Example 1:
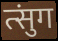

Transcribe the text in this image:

त्सुंग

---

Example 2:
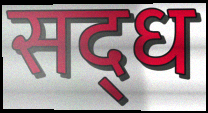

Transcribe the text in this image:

सद्ध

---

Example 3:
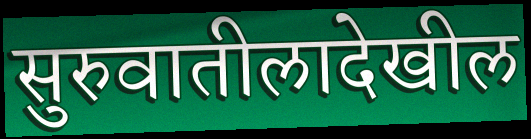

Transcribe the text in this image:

सुरुवातीलादेखील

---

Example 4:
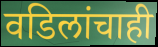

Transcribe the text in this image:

वडिलांचाही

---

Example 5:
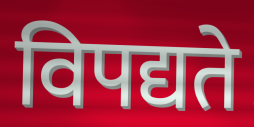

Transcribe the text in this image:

विपद्यते